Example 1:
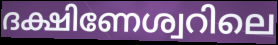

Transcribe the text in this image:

ദക്ഷിണേശ്വറിലെ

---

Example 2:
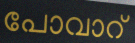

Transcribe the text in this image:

പോവാറ്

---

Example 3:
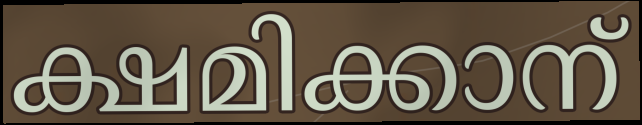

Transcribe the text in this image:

ക്ഷമിക്കാന്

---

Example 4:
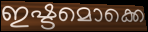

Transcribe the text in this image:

ഇഷ്ടമൊക്കെ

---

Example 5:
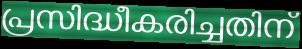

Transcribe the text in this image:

പ്രസിദ്ധീകരിച്ചതിന്